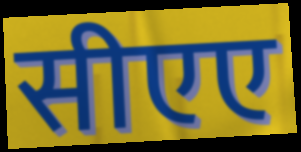
सीएए